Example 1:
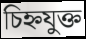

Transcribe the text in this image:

চিহ্নযুক্ত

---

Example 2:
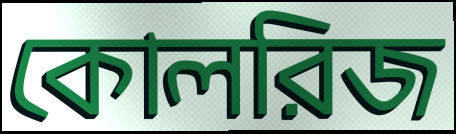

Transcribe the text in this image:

কোলরিজ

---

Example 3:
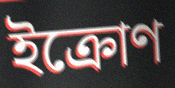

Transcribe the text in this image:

ইক্রোণ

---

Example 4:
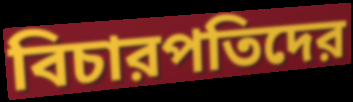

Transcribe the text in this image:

বিচারপতিদের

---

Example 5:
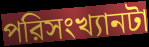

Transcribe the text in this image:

পরিসংখ্যানটা